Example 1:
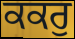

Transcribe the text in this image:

ਕਕਰੁ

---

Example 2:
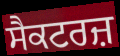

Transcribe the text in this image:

ਸੈਕਟਰਜ਼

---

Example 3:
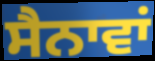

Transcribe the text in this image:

ਸੈਨਾਵਾਂ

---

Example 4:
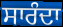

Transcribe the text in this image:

ਸਾਰੰਦਾ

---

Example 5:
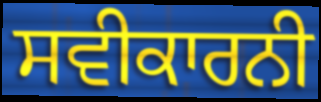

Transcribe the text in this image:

ਸਵੀਕਾਰਨੀ